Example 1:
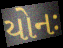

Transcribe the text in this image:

યોનઃ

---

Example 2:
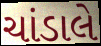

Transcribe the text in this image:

ચાંડાલે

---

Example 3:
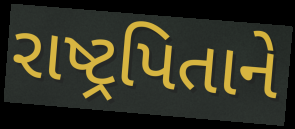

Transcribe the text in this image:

રાષ્ટ્રપિતાને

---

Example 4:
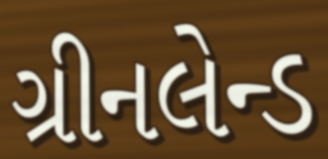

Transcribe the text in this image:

ગ્રીનલેન્ડ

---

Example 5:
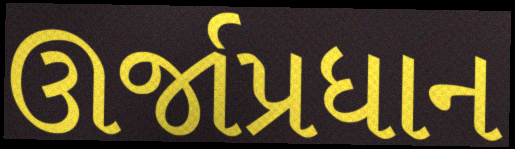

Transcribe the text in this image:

ઊર્જાપ્રધાન